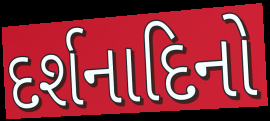
દર્શનાદિનો